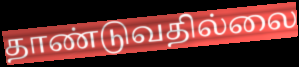
தாண்டுவதில்லை